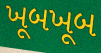
ખૂબખૂબ